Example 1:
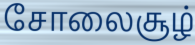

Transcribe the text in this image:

சோலைசூழ்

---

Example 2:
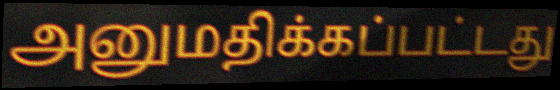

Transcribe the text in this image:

அனுமதிக்கப்பட்டது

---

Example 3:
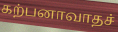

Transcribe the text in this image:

கற்பனாவாதச்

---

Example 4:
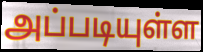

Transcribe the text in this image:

அப்படியுள்ள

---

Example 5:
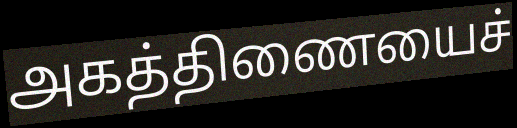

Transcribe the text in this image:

அகத்திணையைச்